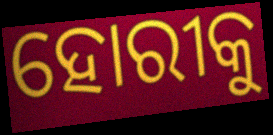
ହୋରୀକୁ